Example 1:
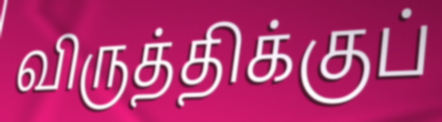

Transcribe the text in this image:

விருத்திக்குப்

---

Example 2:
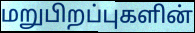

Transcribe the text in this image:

மறுபிறப்புகளின்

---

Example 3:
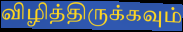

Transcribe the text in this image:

விழித்திருக்கவும்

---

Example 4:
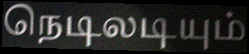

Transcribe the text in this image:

நெடிலடியும்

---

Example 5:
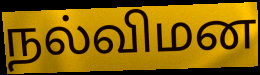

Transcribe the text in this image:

நல்விமன